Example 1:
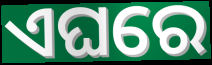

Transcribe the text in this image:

ଏଘରେ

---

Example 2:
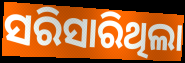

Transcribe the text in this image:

ସରିସାରିଥିଲା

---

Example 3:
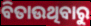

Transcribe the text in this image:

ବିତାଉଥିବାରୁ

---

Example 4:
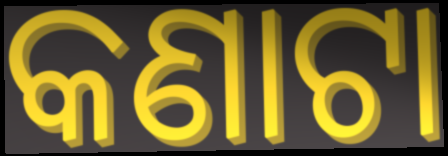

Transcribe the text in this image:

କଣାଟା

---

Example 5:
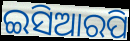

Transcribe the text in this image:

ଇସିଆରପି